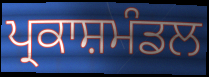
ਪ੍ਰਕਾਸ਼ਮੰਡਲ